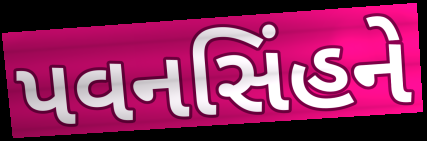
પવનસિંહને